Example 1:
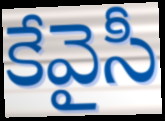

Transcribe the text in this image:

కేవైసీ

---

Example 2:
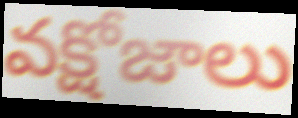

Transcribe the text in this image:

వక్షోజాలు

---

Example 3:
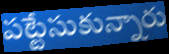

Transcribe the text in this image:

పట్టేసుకున్నారు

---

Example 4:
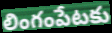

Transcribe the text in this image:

లింగంపేటకు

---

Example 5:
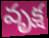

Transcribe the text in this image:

వృక్ష